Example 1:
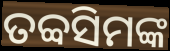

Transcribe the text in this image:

ତବ୍ବସିମଙ୍କ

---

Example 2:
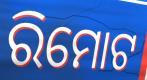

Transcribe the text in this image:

ରିମୋଟ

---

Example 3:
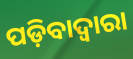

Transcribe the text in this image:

ପଡ଼ିବାଦ୍ୱାରା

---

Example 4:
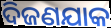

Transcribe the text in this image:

ଦିଜଣଯାକ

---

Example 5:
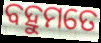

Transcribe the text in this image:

ବହୁମତେ